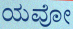
ಯವೋ